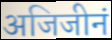
अजिजीनं